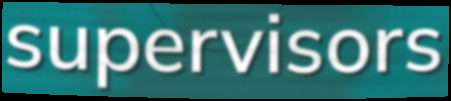
supervisors